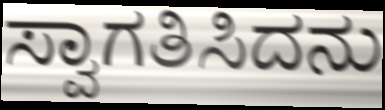
ಸ್ವಾಗತಿಸಿದನು